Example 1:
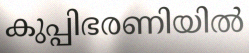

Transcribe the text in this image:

കുപ്പിഭരണിയിൽ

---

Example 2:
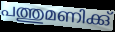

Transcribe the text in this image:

പത്തുമണിക്കു്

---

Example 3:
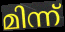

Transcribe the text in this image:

മിന്ന്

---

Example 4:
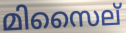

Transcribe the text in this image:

മിസൈല്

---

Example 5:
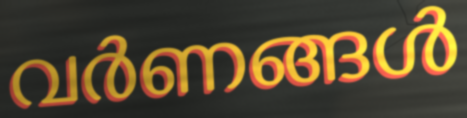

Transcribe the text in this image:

വർണങ്ങൾ